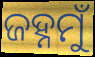
ଜହ୍ନମୁଁ